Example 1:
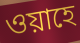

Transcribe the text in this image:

ওয়াহে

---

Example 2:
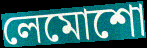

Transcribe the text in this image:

লেমোশো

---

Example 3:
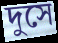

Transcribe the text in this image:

দুসে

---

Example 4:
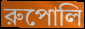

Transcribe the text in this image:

রুপোলি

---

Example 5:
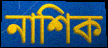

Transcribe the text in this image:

নাশিক